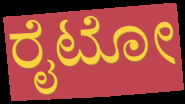
ರೈಟೋ